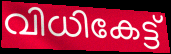
വിധികേട്ട്